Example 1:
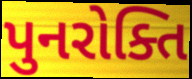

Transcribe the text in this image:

પુનરોક્તિ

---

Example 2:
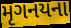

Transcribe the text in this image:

મૃગનયના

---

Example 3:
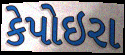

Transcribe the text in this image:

કેપોઇરા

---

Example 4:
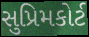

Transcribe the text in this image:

સુપ્રિમકોર્ટ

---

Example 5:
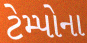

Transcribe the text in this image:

ટેમ્પોના